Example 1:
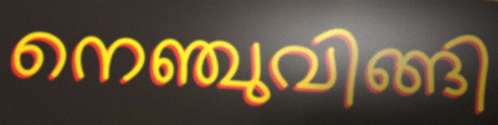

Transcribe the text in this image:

നെഞ്ചുവിങ്ങി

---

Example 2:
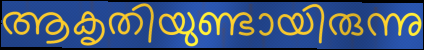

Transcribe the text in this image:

ആകൃതിയുണ്ടായിരുന്നു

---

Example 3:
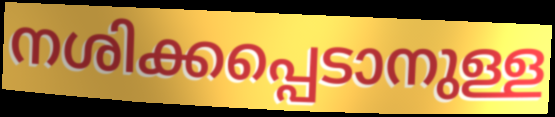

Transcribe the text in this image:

നശിക്കപ്പെടാനുള്ള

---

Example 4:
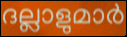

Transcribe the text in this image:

ദല്ലാളുമാർ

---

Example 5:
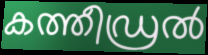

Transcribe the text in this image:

കത്തീഡ്രൽ